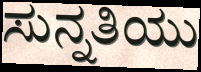
ಸುನ್ನತಿಯು